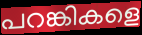
പറങ്കികളെ